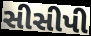
સીસીપી